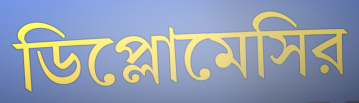
ডিপ্লোমেসির